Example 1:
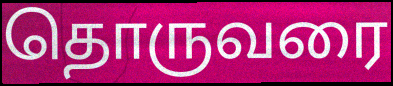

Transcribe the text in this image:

தொருவரை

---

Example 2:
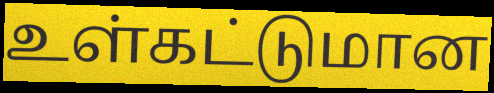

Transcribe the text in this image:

உள்கட்டுமான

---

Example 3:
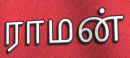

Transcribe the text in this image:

ராமன்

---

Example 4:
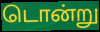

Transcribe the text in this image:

டொன்று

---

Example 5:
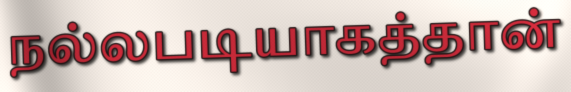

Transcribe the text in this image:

நல்லபடியாகத்தான்